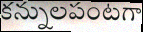
కన్నులపంటగా